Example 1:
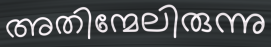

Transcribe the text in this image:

അതിന്മേലിരുന്നു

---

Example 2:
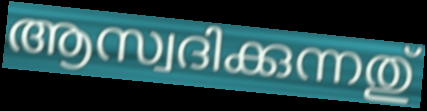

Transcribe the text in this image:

ആസ്വദിക്കുന്നതു്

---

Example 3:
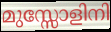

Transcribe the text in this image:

മുസ്സോളിനി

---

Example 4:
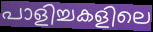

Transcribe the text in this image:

പാളിച്ചകളിലെ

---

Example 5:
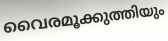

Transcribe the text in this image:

വൈരമൂക്കുത്തിയും